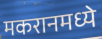
मकरानमध्ये